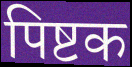
पिष्टक